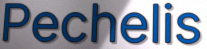
Pechelis